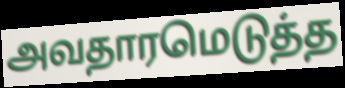
அவதாரமெடுத்த